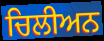
ਚਿਲੀਅਨ